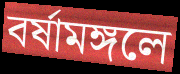
বর্ষামঙ্গলে